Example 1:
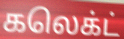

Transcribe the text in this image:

கலெக்ட்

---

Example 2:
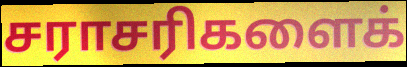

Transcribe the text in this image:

சராசரிகளைக்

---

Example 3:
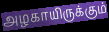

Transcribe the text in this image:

அழகாயிருக்கும்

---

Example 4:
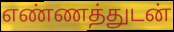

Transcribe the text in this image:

எண்ணத்துடன்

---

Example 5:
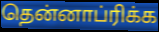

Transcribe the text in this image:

தென்னாப்ரிக்க